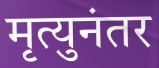
मृत्युनंतर